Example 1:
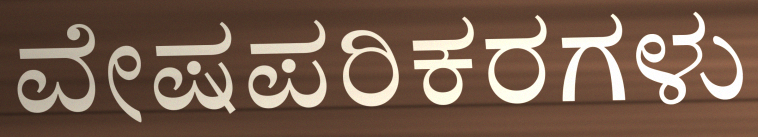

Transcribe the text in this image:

ವೇಷಪರಿಕರಗಳು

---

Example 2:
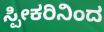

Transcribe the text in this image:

ಸ್ಪೀಕರಿನಿಂದ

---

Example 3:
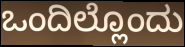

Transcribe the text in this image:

ಒಂದಿಲ್ಲೊಂದು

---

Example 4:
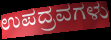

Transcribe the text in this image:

ಉಪದ್ರವಗಳು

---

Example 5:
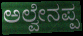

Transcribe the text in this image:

ಅಲ್ವೇನಪ್ಪ